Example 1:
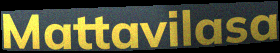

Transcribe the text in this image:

Mattavilasa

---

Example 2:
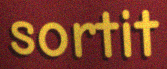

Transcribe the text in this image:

sortit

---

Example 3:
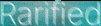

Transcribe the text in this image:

Rarified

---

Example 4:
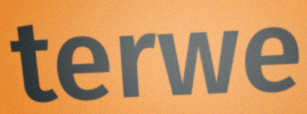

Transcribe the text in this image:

terwe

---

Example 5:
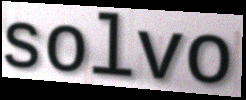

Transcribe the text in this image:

solvo